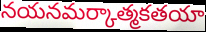
నయనమర్కాత్మకతయా